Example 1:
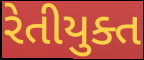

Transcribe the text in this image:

રેતીયુક્ત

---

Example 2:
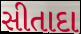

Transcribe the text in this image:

સીતાદા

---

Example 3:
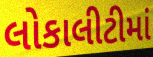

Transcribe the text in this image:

લોકાલીટીમાં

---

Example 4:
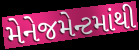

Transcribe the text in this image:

મેનેજમેન્ટમાંથી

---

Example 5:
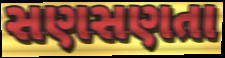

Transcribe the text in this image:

સણસણતા